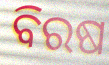
ବିରଷ